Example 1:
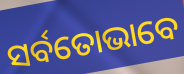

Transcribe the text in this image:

ସର୍ବତୋଭାବେ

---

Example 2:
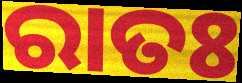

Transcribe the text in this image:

ରାତଃ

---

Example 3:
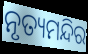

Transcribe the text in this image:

ନୃତ୍ୟମନ୍ଦିର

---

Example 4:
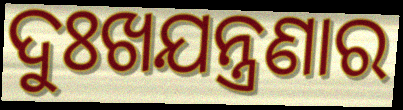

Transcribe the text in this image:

ଦୁଃଖଯନ୍ତ୍ରଣାର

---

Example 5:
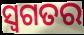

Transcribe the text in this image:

ସ୍ୱଗତର